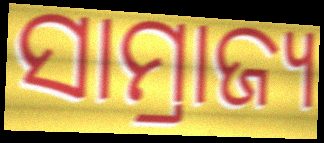
ସାମ୍ରାଜ୍ୟ